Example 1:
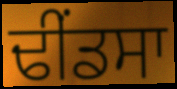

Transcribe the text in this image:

ਢੀੰਂਡਸਾ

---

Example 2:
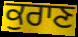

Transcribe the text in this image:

ਕੁਰਾਣ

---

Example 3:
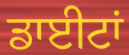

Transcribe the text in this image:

ਡਾਈਟਾਂ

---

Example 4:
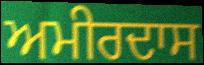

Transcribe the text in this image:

ਅਮੀਰਦਾਸ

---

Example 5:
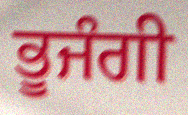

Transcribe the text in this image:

ਭੂਜੰਗੀ